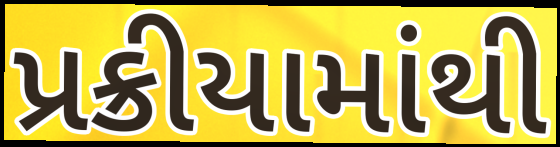
પ્રક્રીયામાંથી